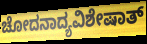
ಚೋದನಾದ್ಯವಿಶೇಷಾತ್